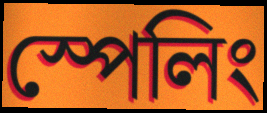
স্পেলিং